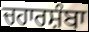
ਚਹਾਰਸ਼ੰਬਾ